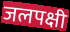
जलपक्षी